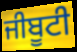
ਜੀਬੂਟੀ